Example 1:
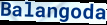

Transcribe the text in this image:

Balangoda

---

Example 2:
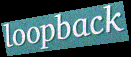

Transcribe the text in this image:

loopback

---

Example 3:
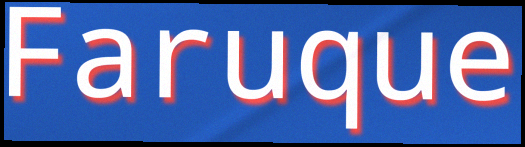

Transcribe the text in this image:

Faruque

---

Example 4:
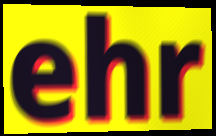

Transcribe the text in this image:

ehr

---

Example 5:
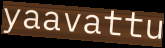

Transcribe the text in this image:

yaavattu